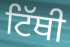
ਟਿੱਥੀ